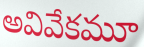
అవివేకమూ